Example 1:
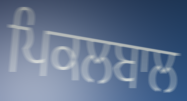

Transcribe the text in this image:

ਪਿਕਲਬਾਲ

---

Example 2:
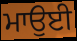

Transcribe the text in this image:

ਮਾਉਈ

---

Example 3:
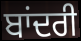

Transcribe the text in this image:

ਬਾਂਦਰੀ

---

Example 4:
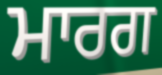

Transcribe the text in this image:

ਮਾਰਗ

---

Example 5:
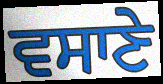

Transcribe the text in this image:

ਵਸਾਣੇ